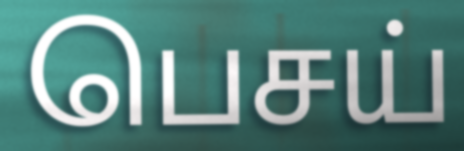
பெசய்